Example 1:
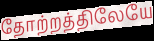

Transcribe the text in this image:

தோற்றத்திலேயே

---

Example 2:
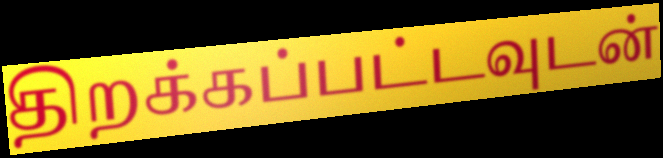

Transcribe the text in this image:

திறக்கப்பட்டவுடன்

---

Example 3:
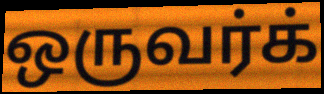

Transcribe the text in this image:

ஒருவர்க்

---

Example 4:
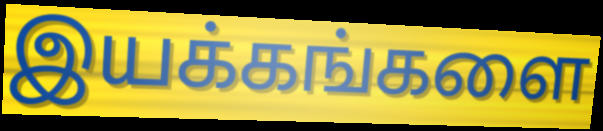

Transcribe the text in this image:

இயக்கங்களை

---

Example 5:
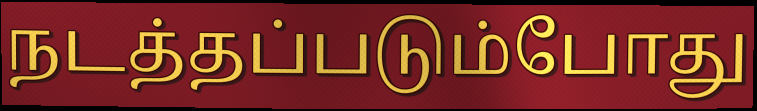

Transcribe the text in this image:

நடத்தப்படும்போது